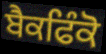
ਬੈਕਫਿੰਕੋ